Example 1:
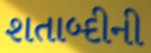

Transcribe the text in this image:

શતાબ્દીની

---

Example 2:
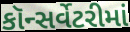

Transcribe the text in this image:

કૉન્સર્વેટરીમાં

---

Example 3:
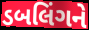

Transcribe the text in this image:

ડબલિંગને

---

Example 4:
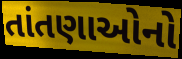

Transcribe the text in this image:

તાંતણાઓનો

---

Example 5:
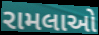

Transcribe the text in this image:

રામલાઓ